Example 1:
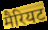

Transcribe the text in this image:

मैरियट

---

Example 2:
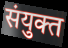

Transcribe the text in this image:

संयुक्‍त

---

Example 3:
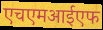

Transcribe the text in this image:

एचएमआईएफ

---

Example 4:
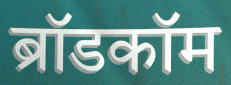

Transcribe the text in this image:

ब्रॉडकॉम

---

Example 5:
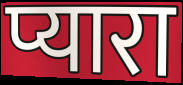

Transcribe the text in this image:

प्‍यारा